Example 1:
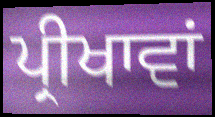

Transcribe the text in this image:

ਪ੍ਰੀਖਾਵਾਂ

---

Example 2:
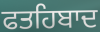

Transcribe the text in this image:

ਫਤਹਿਬਾਦ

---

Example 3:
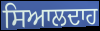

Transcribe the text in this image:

ਸਿਆਲਦਾਹ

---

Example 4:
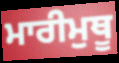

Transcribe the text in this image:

ਮਾਰੀਮੁਥੂ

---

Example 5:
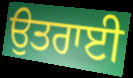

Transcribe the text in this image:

ਉਤਰਾਈ